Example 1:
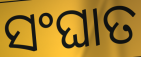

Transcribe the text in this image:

ସଂଘାତ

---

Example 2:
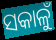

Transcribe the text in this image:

ସକାଳୁଁ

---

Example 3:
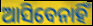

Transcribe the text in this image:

ଆସିବେନାହିଁ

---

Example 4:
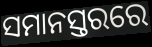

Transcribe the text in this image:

ସମାନସ୍ତରରେ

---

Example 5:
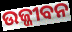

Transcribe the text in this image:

ଉଜ୍ଜୀବନ